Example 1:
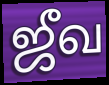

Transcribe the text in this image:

ஜீவ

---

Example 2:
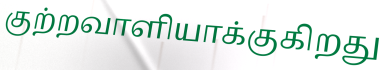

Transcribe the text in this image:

குற்றவாளியாக்குகிறது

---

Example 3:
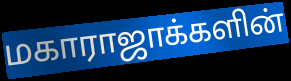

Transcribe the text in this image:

மகாராஜாக்களின்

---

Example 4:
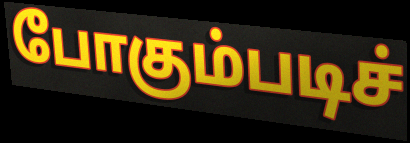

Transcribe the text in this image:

போகும்படிச்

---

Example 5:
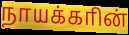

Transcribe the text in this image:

நாயக்கரின்